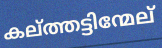
കല്ത്തട്ടിന്മേല്